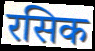
रसिक